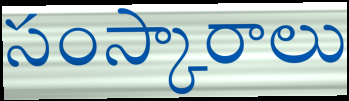
సంస్కారాలు